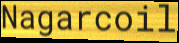
Nagarcoil